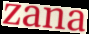
zana